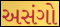
અસંગો